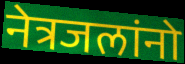
नेत्रजलांनो